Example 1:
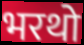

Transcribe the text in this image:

भरथो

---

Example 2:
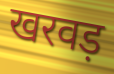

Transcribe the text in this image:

खरवड़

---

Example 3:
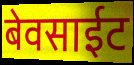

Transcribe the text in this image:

बेवसाईट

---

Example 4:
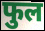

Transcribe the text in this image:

फुल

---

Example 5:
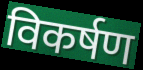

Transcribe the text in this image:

विकर्षण